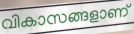
വികാസങ്ങളാണ്